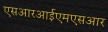
एसआरआईएमएसआर